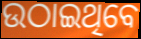
ଉଠାଇଥିବେ